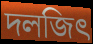
দলজিৎ